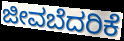
ಜೀವಬೆದರಿಕೆ